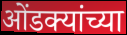
ओंडक्यांच्या